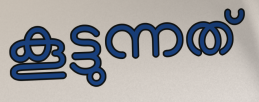
കൂട്ടുന്നത്